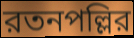
রতনপল্লির